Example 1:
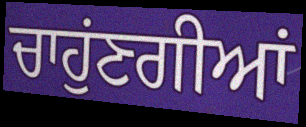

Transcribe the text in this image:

ਚਾਹੁਂਣਗੀਆਂ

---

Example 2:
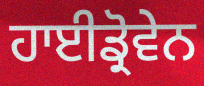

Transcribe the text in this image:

ਹਾਈਡ੍ਰੋਵੇਨ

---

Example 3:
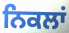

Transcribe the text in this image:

ਨਿਕਲਾਂ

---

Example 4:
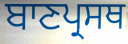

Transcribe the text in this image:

ਬਾਣਪ੍ਰਸਥ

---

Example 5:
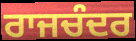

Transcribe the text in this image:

ਰਾਜਚੰਦਰ